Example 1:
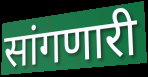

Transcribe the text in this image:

सांगणारी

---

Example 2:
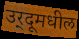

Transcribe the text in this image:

उर्दूमधील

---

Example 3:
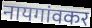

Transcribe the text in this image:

नायगांवकर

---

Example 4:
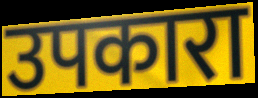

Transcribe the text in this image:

उपकारा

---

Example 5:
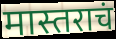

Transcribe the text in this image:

मास्तराचं